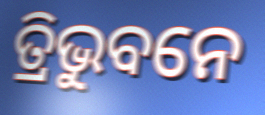
ତ୍ରିଭୁବନେ